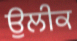
ਉਲੀਕ